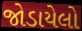
જોડાયેલો